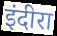
इंदीरा